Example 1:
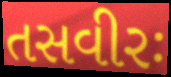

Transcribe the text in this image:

તસવીરઃ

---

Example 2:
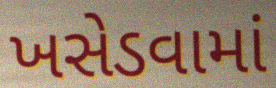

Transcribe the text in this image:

ખસેડવામાં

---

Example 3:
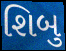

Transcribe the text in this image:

શિબુ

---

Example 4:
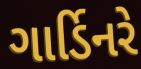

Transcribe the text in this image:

ગાર્ડિનરે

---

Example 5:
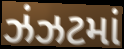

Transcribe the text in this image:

ઝંઝટમાં